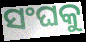
ସଂଘକୁ